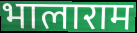
भालाराम